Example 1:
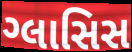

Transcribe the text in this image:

ગ્લાસિસ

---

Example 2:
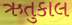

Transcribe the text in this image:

ઋતુકાલ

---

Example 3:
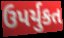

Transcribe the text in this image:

ઉપર્યુકત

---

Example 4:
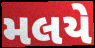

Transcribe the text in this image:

મલયે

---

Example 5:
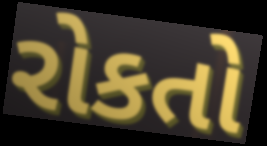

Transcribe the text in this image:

રોકતો